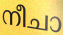
നീചാ